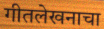
गीतलेखनाचा